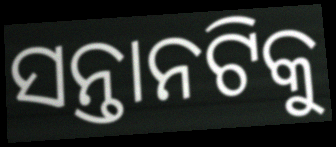
ସନ୍ତାନଟିକୁ